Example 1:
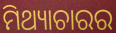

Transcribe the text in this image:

ମିଥ୍ୟାଚାରର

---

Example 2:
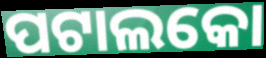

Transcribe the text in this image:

ପଟାଲକୋ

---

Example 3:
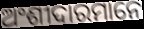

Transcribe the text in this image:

ଅଂଶୀଦାରମାନେ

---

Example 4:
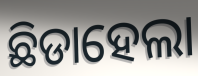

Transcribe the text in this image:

ଛିଡାହେଲା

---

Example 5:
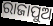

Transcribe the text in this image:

ରାଜାପୁଅ